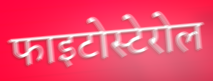
फाइटोस्टेरोल